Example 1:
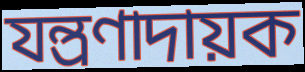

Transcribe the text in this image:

যন্ত্রণাদায়ক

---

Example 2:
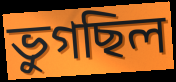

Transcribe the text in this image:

ভুগছিল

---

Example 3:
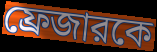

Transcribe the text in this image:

ফ্রেজারকে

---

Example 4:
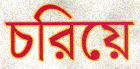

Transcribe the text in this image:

চরিয়ে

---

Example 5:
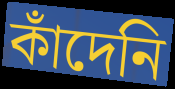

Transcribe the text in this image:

কাঁদেনি